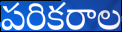
పరికరాల